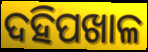
ଦହିପଖାଳ